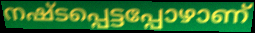
നഷ്ടപ്പെട്ടപ്പോഴാണ്